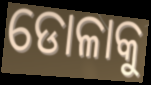
ଡୋଳାକୁ